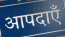
आपदाएँ